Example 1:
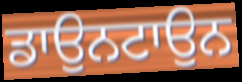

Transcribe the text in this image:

ਡਾਉਨਟਾਉਨ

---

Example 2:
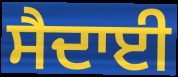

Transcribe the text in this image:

ਸੈਦਾਈ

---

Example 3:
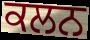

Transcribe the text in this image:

ਕਲਨ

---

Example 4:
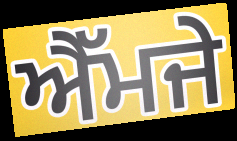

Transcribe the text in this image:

ਐੱਮਜੇ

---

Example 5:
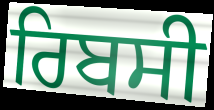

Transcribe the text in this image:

ਰਿਬਸੀ